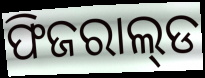
ଫିଜରାଲ୍‌ଡ